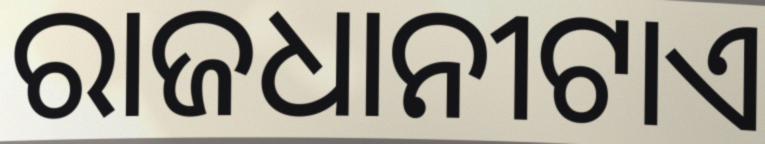
ରାଜଧାନୀଟାଏ